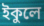
ইকুলে